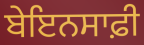
ਬੇਇਨਸਾਫ਼ੀ